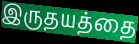
இருதயத்தை